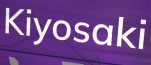
Kiyosaki